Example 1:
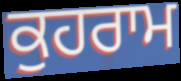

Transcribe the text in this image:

ਕੁਹਰਾਮ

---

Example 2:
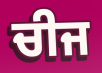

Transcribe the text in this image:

ਚੀਜ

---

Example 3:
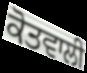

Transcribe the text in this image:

ਕੋਤਵਾਲੀ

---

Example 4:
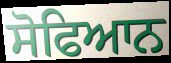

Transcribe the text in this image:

ਸੋਫਿਆਨ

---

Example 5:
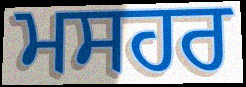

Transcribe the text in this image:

ਮਸਹਰ